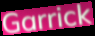
Garrick